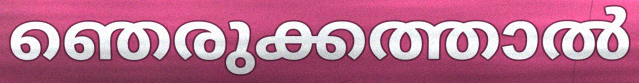
ഞെരുക്കത്താൽ